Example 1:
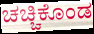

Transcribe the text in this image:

ಚಚ್ಚಿಕೊಂಡ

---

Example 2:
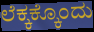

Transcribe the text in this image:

ಲೆಕ್ಕಕ್ಕೊಂದು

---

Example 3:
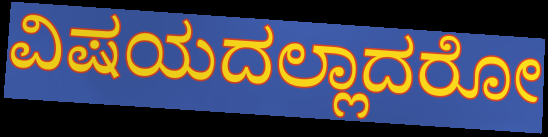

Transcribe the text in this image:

ವಿಷಯದಲ್ಲಾದರೋ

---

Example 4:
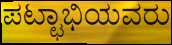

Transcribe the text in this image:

ಪಟ್ಟಾಭಿಯವರು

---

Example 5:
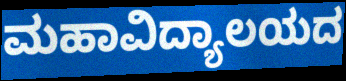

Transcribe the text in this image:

ಮಹಾವಿದ್ಯಾಲಯದ